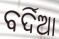
ବର୍ଦିଆ